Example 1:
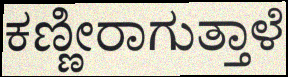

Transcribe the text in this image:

ಕಣ್ಣೀರಾಗುತ್ತಾಳೆ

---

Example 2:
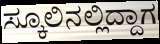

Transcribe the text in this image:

ಸ್ಕೂಲಿನಲ್ಲಿದ್ದಾಗ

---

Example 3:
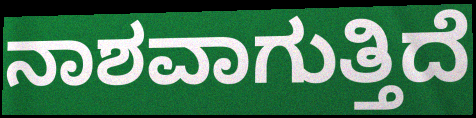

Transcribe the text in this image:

ನಾಶವಾಗುತ್ತಿದೆ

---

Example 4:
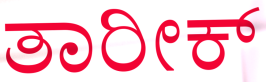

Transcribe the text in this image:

ತಾರೀಕ್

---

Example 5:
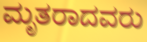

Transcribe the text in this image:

ಮೃತರಾದವರು